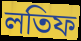
লতিফ